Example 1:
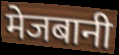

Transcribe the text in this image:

मेजबानी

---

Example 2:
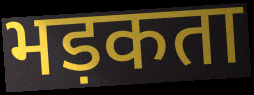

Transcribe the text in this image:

भड़कता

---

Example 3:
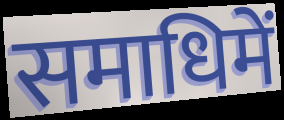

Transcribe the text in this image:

समाधिमें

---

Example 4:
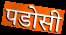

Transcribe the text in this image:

पडोसी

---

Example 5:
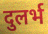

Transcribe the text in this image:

दुलर्भ